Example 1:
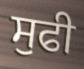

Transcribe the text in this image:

ਸੁਫੀ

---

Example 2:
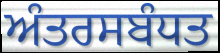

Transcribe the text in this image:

ਅੰਤਰਸਬੰਧਤ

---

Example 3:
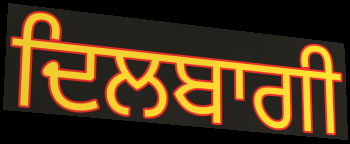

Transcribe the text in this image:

ਦਿਲਬਾਗੀ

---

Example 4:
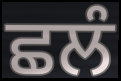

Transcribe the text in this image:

ਛਲੰ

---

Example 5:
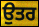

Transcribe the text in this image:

ਉਤਰ